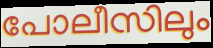
പോലീസിലും